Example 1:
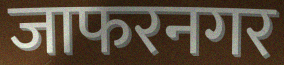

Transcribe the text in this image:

जाफरनगर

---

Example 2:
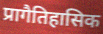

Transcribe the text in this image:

प्रागैतिहासिक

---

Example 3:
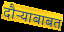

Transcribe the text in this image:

दौऱ्याबाबत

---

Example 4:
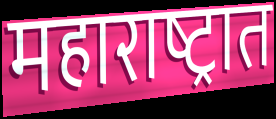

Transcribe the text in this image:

महाराष्ट्रात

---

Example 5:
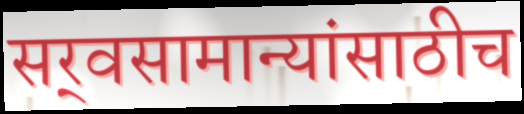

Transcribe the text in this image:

सर्वसामान्यांसाठीच